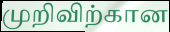
முறிவிற்கான